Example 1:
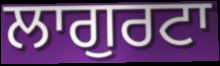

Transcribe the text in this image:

ਲਾਗੁਰਟਾ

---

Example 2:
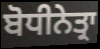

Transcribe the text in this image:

ਬੋਧੀਨੇਤ੍ਰਾ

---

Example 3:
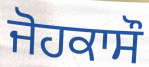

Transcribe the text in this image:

ਜੋਹਕਾਸੌ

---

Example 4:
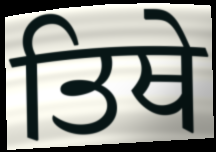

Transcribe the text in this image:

ਤਿਥੇ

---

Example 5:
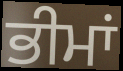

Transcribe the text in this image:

ਭੀਮਾਂ